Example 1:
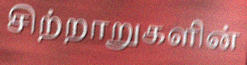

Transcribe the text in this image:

சிற்றாறுகளின்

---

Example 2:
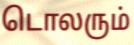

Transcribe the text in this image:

டொலரும்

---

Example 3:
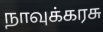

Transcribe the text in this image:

நாவுக்கரசு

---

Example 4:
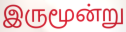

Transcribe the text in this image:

இருமூன்று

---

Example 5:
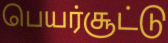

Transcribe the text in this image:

பெயர்சூட்டு